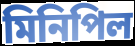
মিনিপিল